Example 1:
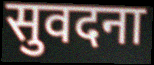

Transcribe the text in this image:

सुवदना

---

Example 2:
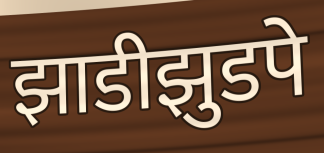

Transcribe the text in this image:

झाडीझुडपे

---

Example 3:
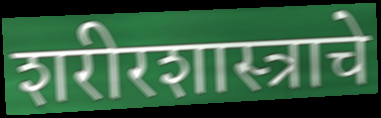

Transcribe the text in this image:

शरीरशास्त्राचे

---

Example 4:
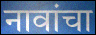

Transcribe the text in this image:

नावांचा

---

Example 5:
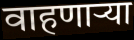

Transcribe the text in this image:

वाहणाऱ्या